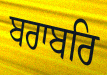
ਬਰਾਬਰਿ